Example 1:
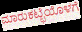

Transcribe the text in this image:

ಮಾರುಕಟ್ಟೆಯೊಳಗೆ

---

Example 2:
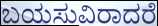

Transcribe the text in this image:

ಬಯಸುವಿರಾದರೆ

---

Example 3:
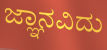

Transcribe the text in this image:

ಜ್ಞಾನವಿದು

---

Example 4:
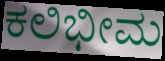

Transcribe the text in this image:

ಕಲಿಭೀಮ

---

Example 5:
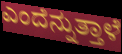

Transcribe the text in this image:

ಎಂದೆನ್ನುತ್ತಾಳೆ